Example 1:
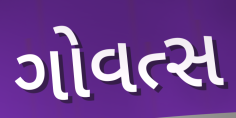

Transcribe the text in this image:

ગોવત્સ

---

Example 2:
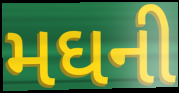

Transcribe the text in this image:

મઘની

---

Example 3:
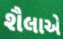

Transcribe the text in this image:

શૈલાએ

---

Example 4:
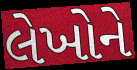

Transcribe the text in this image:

લેખોને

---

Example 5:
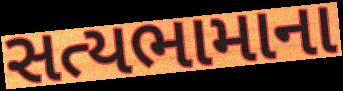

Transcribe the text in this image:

સત્યભામાના